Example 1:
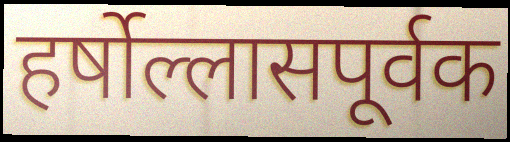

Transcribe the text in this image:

हर्षोल्लासपूर्वक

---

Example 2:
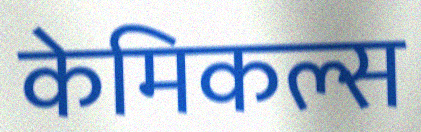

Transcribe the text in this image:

केमिकल्स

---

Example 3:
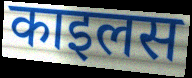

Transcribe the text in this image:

काइलस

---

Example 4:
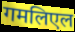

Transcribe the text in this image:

गमलिएल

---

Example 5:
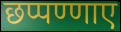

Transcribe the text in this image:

छप्पण्णाए